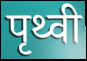
पृथ्वी